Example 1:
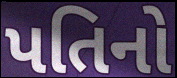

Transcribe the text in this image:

પતિનો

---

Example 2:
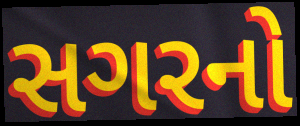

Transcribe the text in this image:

સગરનો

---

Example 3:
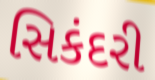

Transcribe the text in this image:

સિકંદરી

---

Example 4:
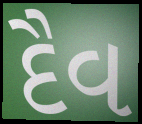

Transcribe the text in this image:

દૈવ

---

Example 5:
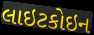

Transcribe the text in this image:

લાઇટકોઇન